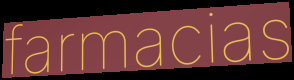
farmacias